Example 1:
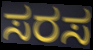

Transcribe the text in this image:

ಸರಸ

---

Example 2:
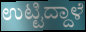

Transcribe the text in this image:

ಉಟ್ಟಿದ್ದಾಳೆ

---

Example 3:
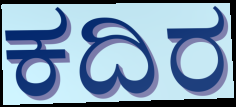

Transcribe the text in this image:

ಕದಿರ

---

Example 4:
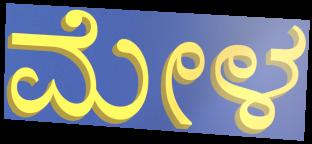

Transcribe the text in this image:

ಮೇಳ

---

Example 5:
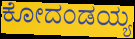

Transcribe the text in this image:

ಕೋದಂಡಯ್ಯ